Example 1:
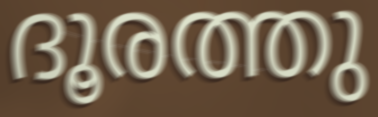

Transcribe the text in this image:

ദൂരത്തു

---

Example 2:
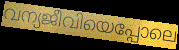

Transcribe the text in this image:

വന്യജീവിയെപ്പോലെ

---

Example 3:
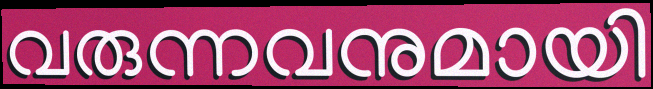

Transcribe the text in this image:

വരുന്നവനുമായി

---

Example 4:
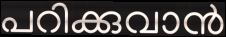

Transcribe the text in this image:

പറിക്കുവാൻ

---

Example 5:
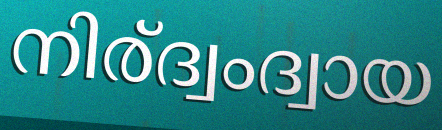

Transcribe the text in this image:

നിര്ദ്വംദ്വായ